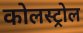
कोलस्ट्रोल